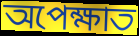
অপেক্ষাত